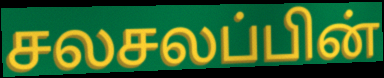
சலசலப்பின்